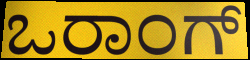
ಒರಾಂಗ್